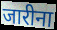
जारीना